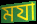
মযা